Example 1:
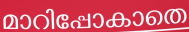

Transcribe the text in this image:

മാറിപ്പോകാതെ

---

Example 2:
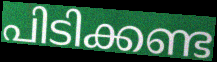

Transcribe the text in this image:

പിടിക്കണ്ട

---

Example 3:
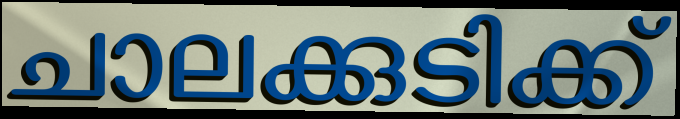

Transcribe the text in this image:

ചാലക്കുടിക്ക്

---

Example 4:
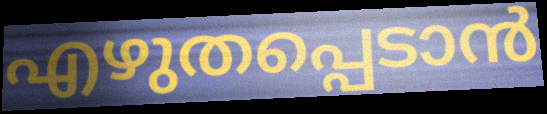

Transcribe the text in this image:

എഴുതപ്പെടാൻ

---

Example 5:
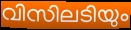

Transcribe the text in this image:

വിസിലടിയും